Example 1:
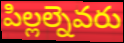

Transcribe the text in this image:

పిల్లల్నెవరు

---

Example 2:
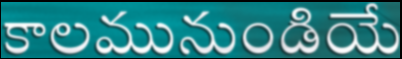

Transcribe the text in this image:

కాలమునుండియే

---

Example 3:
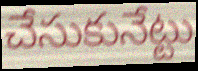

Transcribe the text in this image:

చేసుకునేట్టు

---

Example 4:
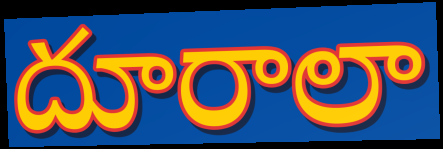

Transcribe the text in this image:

దూరాలా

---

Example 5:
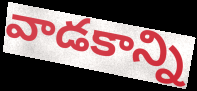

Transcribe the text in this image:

వాడకాన్ని